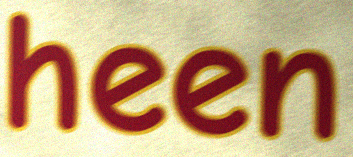
heen